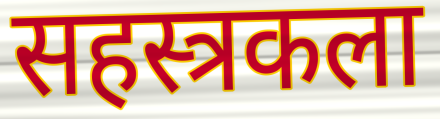
सहस्त्रकला